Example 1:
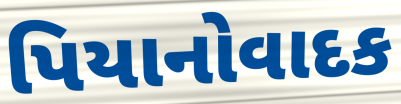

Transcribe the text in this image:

પિયાનોવાદક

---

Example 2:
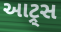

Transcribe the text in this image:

આટ્ર્સ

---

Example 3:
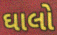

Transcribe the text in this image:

ઘાલો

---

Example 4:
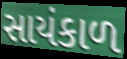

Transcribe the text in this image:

સાયંકાળ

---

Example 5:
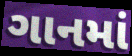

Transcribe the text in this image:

ગાનમાં